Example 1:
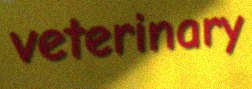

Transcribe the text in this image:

veterinary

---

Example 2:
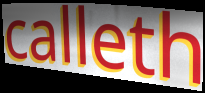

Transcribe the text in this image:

calleth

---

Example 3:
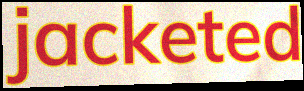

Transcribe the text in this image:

jacketed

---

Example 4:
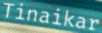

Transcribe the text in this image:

Tinaikar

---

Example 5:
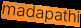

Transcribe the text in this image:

madapathi